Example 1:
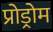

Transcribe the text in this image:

प्रोड्रोम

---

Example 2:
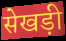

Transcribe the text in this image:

सेखड़ी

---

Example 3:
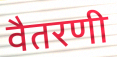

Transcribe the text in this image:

वैतरणी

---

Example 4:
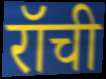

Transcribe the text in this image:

रॉची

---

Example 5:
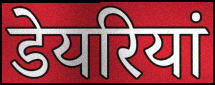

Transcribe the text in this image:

डेयरियां